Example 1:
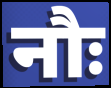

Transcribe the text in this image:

नौः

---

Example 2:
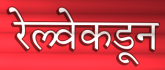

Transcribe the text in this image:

रेल्वेकडून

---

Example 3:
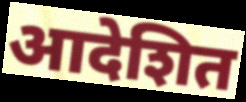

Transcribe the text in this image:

आदेशित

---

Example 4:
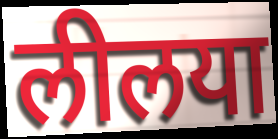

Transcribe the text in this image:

लीलया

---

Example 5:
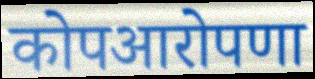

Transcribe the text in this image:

कोपआरोपणा